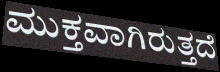
ಮುಕ್ತವಾಗಿರುತ್ತದೆ